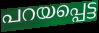
പറയപ്പെട്ട